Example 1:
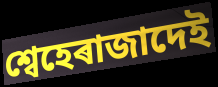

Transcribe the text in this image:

শ্বেহেৰাজাদেই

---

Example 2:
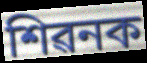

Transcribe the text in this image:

শিৱনক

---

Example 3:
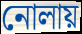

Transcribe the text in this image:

নোলায়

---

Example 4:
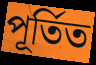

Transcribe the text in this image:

পূৰ্তিত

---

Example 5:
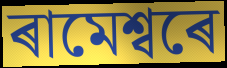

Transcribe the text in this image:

ৰামেশ্বৰে